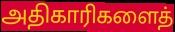
அதிகாரிகளைத்